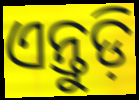
ଏନ୍ତୁଡ଼ି